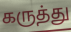
கருத்து